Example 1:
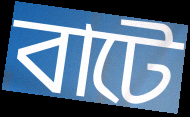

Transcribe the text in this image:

বাটে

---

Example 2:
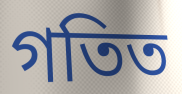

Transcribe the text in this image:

গতিত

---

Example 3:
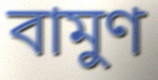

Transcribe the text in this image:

বামুণ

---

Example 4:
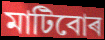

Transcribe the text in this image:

মাটিবোৰ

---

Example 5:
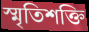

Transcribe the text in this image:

স্মৃতিশক্তি